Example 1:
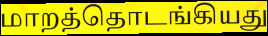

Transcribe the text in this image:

மாறத்தொடங்கியது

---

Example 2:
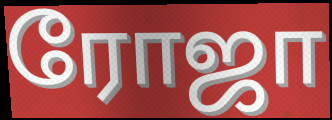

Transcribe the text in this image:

ரோஜா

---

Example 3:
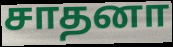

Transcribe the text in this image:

சாதனா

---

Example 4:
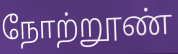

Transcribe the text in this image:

நோற்றூண்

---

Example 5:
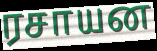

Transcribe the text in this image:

ரசாயன